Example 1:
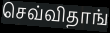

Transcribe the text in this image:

செவ்விதாங்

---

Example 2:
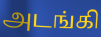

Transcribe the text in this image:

அடங்கி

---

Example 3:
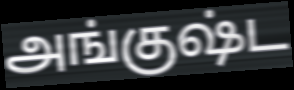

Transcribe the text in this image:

அங்குஷ்ட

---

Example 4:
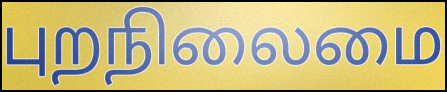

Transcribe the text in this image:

புறநிலைமை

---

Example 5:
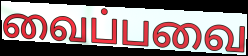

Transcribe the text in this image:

வைப்பவை